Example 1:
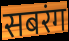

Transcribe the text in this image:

सबरंग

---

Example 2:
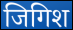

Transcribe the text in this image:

जिगिश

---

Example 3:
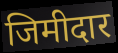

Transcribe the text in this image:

जिमीदार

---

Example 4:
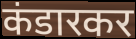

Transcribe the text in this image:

कंडारकर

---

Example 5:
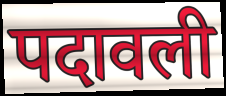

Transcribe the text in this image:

पदावली